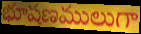
భూషణములుగా